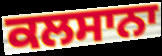
ਕਲਸਾਨਾ